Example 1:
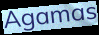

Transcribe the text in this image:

Agamas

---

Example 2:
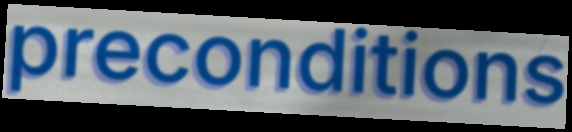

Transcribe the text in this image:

preconditions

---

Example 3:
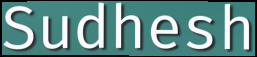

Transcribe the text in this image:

Sudhesh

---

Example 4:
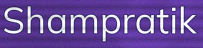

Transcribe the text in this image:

Shampratik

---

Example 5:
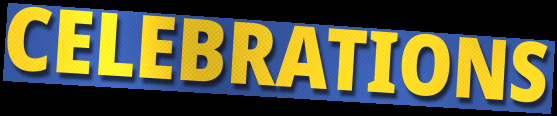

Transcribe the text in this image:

CELEBRATIONS